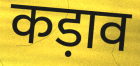
कड़ाव